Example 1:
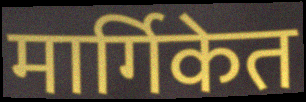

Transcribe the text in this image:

मार्गिकेत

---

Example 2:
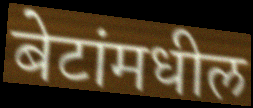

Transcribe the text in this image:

बेटांमधील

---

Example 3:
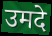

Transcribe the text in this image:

उमदे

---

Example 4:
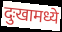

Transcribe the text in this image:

दुःखामध्ये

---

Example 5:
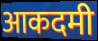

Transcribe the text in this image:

आकदमी